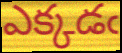
ఎక్కడఁ